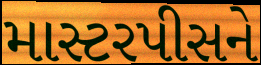
માસ્ટરપીસને